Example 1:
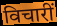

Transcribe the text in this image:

विचारीं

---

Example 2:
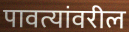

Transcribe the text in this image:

पावत्यांवरील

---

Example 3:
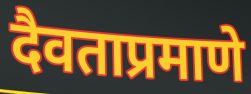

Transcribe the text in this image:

दैवताप्रमाणे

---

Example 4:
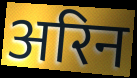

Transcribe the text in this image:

अरिन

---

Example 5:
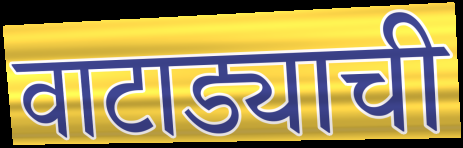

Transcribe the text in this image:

वाटाड्याची